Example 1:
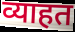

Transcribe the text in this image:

व्याहत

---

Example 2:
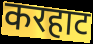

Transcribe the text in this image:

करहाट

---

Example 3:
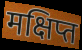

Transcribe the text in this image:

मक्षिप्त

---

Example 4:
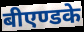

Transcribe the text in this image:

बीएण्डके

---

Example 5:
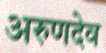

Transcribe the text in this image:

अरुणदेव